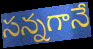
సన్నగానే